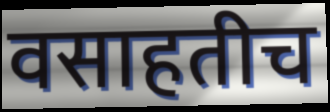
वसाहतीच